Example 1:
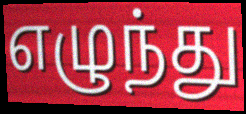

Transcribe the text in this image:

எழுந்து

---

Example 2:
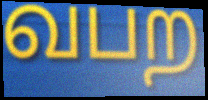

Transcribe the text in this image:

வபற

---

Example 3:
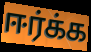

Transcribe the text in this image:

ஈர்க்க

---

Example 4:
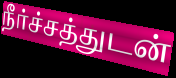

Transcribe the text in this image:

நீர்ச்சத்துடன்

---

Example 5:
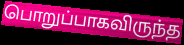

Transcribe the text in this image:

பொறுப்பாகவிருந்த